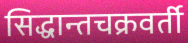
सिद्धान्तचक्रवर्ती